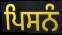
ਪਿਸਨੰ